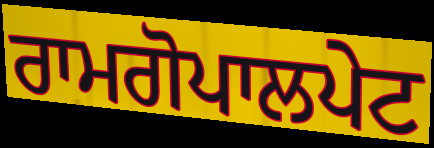
ਰਾਮਗੋਪਾਲਪੇਟ